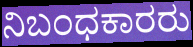
ನಿಬಂಧಕಾರರು